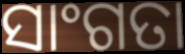
ସାଂଗତା